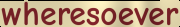
wheresoever